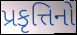
પ્રકૃત્તિનો